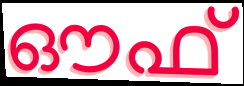
ഔഫ്